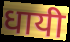
धायी